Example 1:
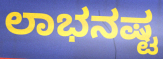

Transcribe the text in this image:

ಲಾಭನಷ್ಟ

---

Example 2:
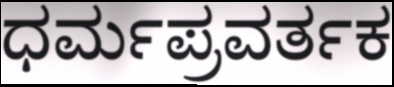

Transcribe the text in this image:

ಧರ್ಮಪ್ರವರ್ತಕ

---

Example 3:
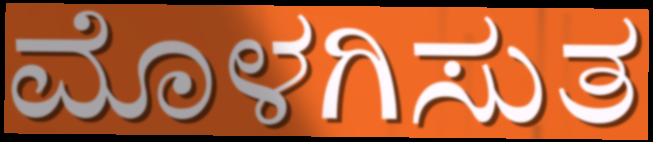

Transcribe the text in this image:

ಮೊಳಗಿಸುತ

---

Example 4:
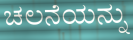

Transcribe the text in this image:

ಚಲನೆಯನ್ನು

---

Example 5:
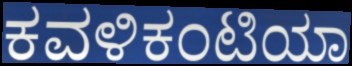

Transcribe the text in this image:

ಕವಳಿಕಂಟಿಯಾ